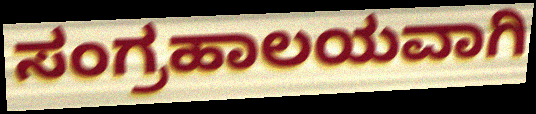
ಸಂಗ್ರಹಾಲಯವಾಗಿ